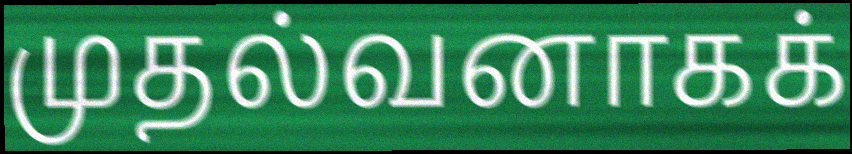
முதல்வனாகக்